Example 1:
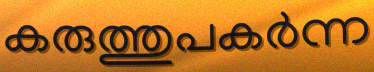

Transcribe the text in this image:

കരുത്തുപകർന്ന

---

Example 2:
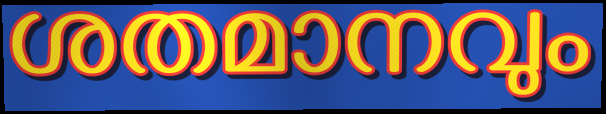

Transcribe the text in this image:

ശതമാനവും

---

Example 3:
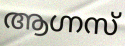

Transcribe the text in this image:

ആഗ്നസ്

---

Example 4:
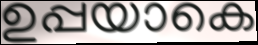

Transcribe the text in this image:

ഉപ്പയാകെ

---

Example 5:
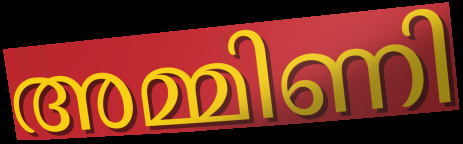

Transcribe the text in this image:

അമ്മിണി